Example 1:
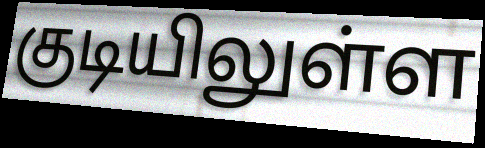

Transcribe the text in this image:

குடியிலுள்ள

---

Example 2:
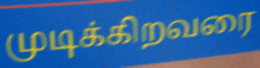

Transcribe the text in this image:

முடிக்கிறவரை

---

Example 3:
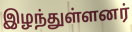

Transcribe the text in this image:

இழந்துள்ளனர்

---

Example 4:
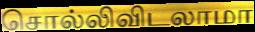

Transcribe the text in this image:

சொல்லிவிடலாமா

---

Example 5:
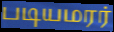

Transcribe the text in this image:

படியமரர்